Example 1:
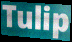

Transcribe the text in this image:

Tulip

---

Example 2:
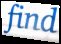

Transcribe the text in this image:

find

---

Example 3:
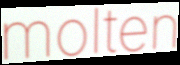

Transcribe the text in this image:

molten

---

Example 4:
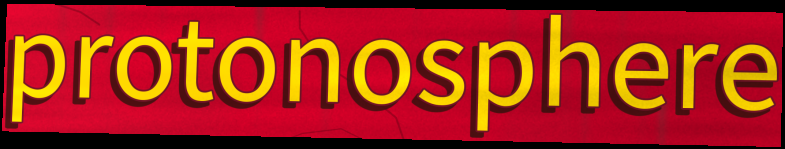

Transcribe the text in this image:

protonosphere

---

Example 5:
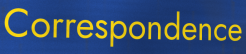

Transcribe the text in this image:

Correspondence